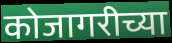
कोजागरीच्या